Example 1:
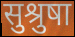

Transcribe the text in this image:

सुश्रुषा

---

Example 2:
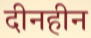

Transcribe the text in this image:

दीनहीन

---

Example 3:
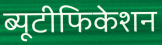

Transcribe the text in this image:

ब्यूटीफिकेशन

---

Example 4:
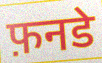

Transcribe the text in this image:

फ़नडे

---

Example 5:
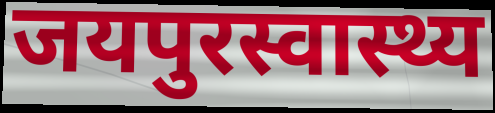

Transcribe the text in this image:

जयपुरस्वास्थ्य